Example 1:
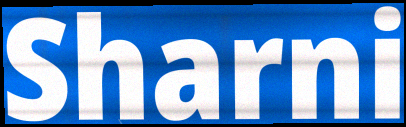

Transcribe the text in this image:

Sharni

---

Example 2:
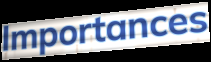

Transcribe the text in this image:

Importances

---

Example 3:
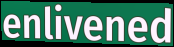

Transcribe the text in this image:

enlivened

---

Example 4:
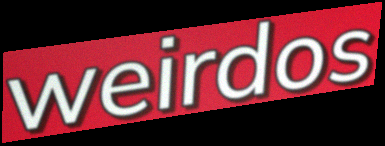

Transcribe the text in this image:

weirdos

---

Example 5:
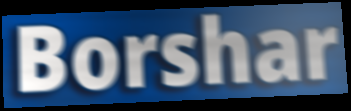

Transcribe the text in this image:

Borshar